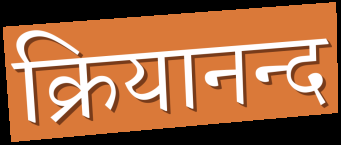
क्रियानन्द